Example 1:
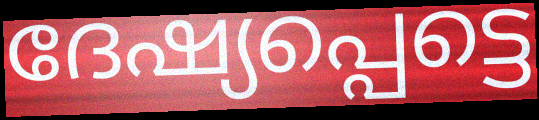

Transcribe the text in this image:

ദേഷ്യപ്പെട്ടെ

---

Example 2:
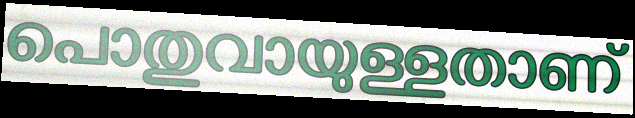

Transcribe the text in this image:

പൊതുവായുള്ളതാണ്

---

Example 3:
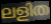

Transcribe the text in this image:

ലളിത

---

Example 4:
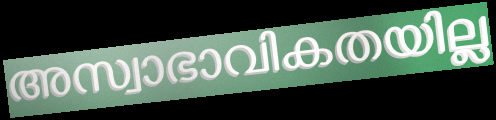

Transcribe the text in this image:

അസ്വാഭാവികതയില്ല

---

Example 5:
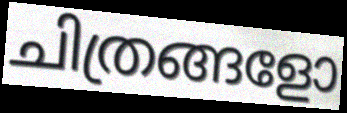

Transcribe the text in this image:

ചിത്രങ്ങളോ